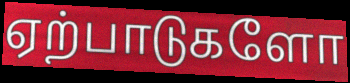
ஏற்பாடுகளோ